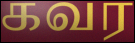
கவர